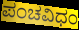
ಪಂಚವಿಧಂ